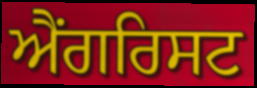
ਐਂਗਰਿਸਟ